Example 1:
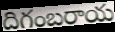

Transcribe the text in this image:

దిగంబరాయ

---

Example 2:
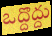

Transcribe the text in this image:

ఒద్దొద్దు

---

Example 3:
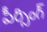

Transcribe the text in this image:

పీర్సింగ్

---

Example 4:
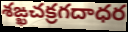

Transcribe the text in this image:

శఙ్ఖచక్రగదాధర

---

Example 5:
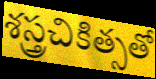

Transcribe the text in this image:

శస్త్రచికిత్సతో